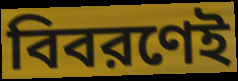
বিবরণেই